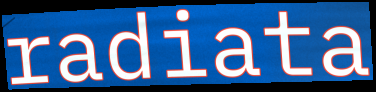
radiata